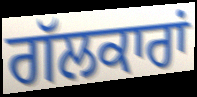
ਗੱਲਕਾਰਾਂ